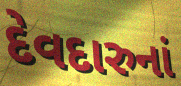
દેવદારુનાં